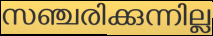
സഞ്ചരിക്കുന്നില്ല